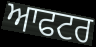
ਆਫਟਰ